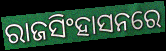
ରାଜସିଂହାସନରେ